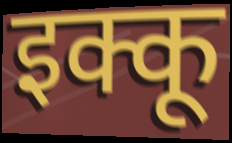
इक्कू